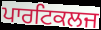
ਪਾਰਟਿਕਲਜ